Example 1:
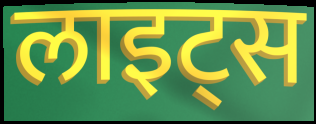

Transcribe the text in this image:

लाइट्स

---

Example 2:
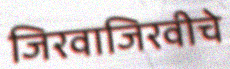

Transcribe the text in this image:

जिरवाजिरवीचे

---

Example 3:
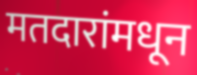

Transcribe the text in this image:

मतदारांमधून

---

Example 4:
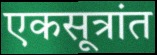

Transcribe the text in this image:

एकसूत्रांत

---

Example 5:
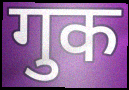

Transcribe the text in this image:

गुक